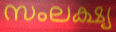
സംലക്ഷ്യ